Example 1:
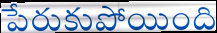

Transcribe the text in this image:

పేరుకుపోయింది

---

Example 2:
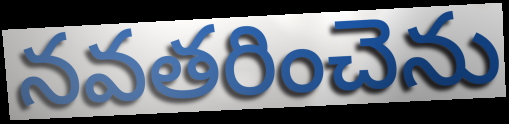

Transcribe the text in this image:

నవతరించెను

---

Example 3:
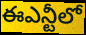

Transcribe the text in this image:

ఈఎన్టీలో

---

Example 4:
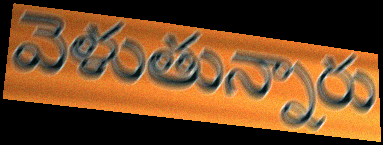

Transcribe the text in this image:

వెళుతున్నారు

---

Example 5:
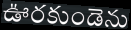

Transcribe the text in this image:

ఊరకుండెను